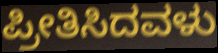
ಪ್ರೀತಿಸಿದವಳು